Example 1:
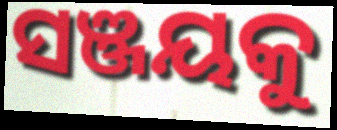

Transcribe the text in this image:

ସଞ୍ଜୟକୁ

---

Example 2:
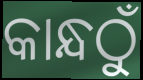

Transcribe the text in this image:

କାନ୍ଧଠୁଁ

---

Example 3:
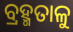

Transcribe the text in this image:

ବ୍ରହ୍ମତାଳୁ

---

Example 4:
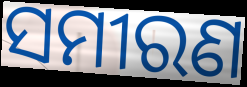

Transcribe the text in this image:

ସମୀରଣ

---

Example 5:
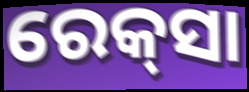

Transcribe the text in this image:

ରେକ୍‍ସା